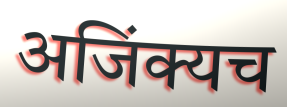
अजिंक्यच